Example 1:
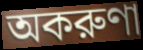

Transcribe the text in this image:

অকরুণা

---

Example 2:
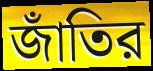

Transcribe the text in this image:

জাঁতির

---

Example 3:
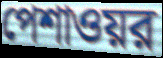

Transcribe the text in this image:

পেশাওয়র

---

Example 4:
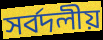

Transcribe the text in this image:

সর্বদলীয়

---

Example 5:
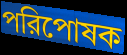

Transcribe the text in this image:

পরিপোষক